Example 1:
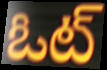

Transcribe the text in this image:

ఓట్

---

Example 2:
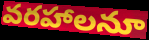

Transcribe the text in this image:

వరహాలనూ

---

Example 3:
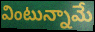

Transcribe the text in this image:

వింటున్నామే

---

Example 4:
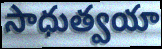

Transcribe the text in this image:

సాధుత్వయా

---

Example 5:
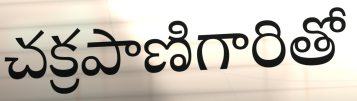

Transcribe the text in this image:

చక్రపాణిగారితో